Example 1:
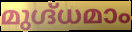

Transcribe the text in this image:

മുഗ്ദ്ധമാം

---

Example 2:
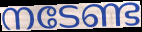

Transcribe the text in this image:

നടേണ്ട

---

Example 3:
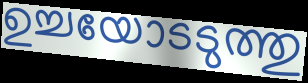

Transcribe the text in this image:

ഉച്ചയോടടുത്തു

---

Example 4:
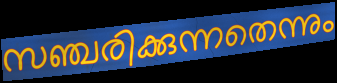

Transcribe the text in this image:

സഞ്ചരിക്കുന്നതെന്നും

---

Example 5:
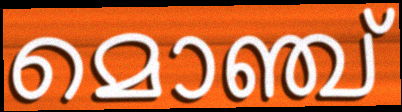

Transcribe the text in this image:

മൊഞ്ച്